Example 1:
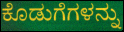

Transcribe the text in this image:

ಕೊಡುಗೆಗಳನ್ನು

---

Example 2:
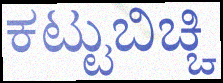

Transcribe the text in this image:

ಕಟ್ಟುಬಿಚ್ಚಿ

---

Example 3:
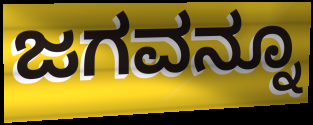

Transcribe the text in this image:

ಜಗವನ್ನೂ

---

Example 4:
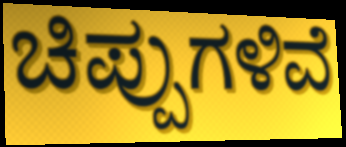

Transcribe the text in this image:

ಚಿಪ್ಪುಗಳಿವೆ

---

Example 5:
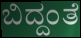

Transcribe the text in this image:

ಬಿದ್ದಂತೆ